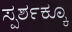
ಸ್ಪರ್ಶಕ್ಕೂ